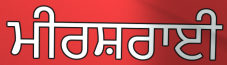
ਮੀਰਸ਼ਰਾਈ